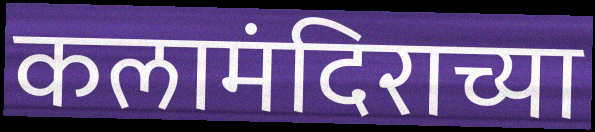
कलामंदिराच्या